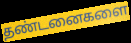
தண்டனைகளை